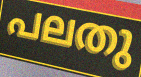
പലതു